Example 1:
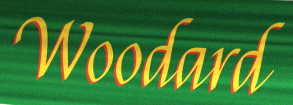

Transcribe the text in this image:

Woodard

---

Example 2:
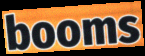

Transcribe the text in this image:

booms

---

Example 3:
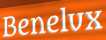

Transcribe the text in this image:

Benelux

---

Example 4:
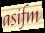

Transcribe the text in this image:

asifm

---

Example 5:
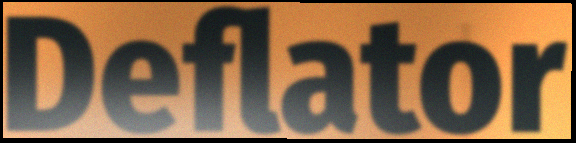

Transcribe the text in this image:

Deflator